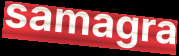
samagra